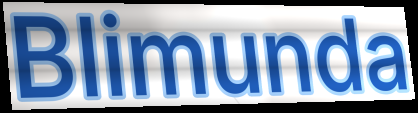
Blimunda